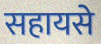
सहायसे